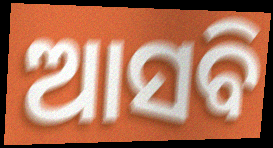
ଆସବି